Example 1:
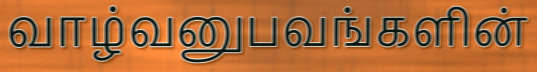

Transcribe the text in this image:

வாழ்வனுபவங்களின்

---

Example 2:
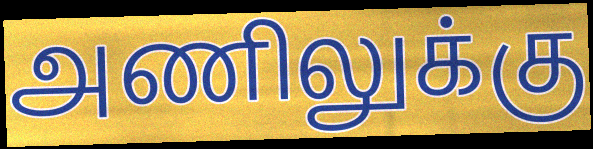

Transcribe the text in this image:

அணிலுக்கு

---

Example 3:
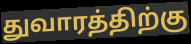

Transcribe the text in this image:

துவாரத்திற்கு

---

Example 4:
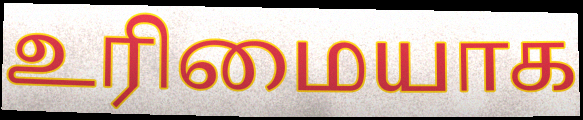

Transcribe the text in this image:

உரிமையாக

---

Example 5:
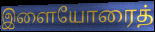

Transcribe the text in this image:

இளையோரைத்